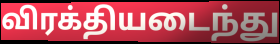
விரக்தியடைந்து